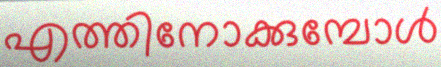
എത്തിനോക്കുമ്പോൾ